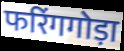
फरिंगगोड़ा